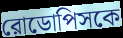
রোডোপিসকে